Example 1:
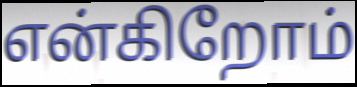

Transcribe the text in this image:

என்கிறோம்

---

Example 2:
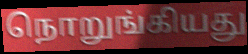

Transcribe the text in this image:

நொறுங்கியது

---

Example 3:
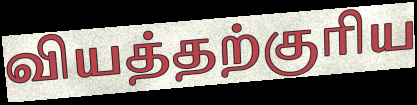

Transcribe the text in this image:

வியத்தற்குரிய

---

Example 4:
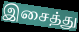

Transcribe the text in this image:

இசைத்து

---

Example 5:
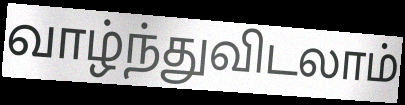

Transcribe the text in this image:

வாழ்ந்துவிடலாம்